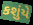
કશુંયે